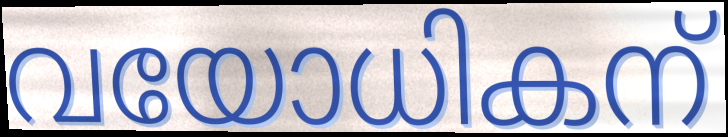
വയോധികന്